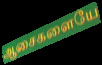
ஆசைகளையே